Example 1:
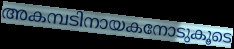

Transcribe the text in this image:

അകമ്പടിനായകനോടുകൂടെ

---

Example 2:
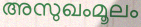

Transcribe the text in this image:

അസുഖംമൂലം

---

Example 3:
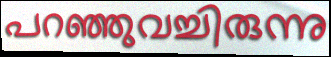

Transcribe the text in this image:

പറഞ്ഞുവച്ചിരുന്നു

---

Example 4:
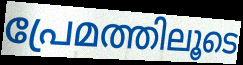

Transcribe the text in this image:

പ്രേമത്തിലൂടെ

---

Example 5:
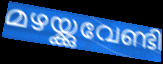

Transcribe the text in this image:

മഴയ്ക്കുവേണ്ടി